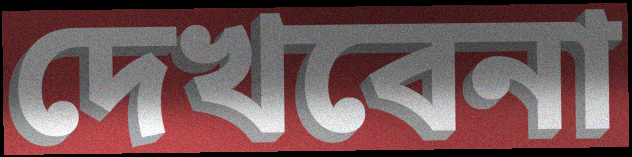
দেখবেনা